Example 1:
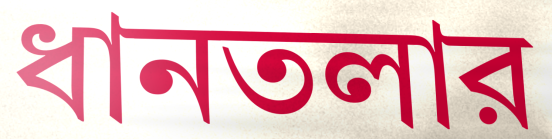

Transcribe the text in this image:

ধানতলার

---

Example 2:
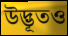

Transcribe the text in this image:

উদ্ভূতও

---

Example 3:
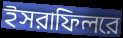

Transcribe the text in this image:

ইসরাফিলরে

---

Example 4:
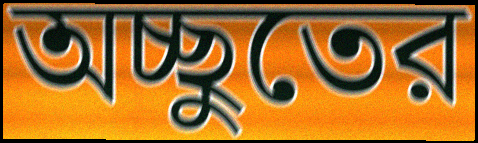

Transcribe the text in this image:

অচ্ছুতের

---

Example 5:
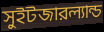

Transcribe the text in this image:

সুইটজারল্যান্ড